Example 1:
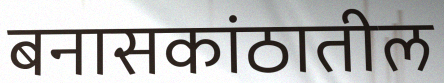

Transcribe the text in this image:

बनासकांठातील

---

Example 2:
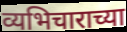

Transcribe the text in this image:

व्यभिचाराच्या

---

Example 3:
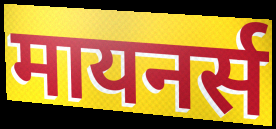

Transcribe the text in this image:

मायनर्स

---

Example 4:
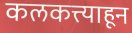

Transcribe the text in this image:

कलकत्त्याहून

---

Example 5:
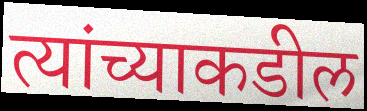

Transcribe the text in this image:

त्यांच्याकडील